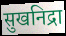
सुखनिद्रा